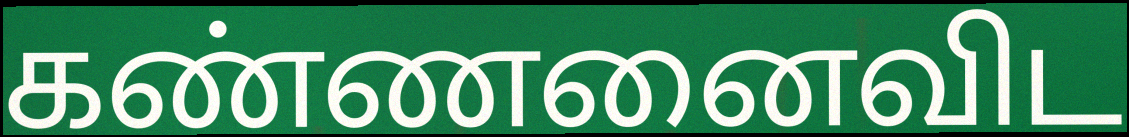
கண்ணனைவிட